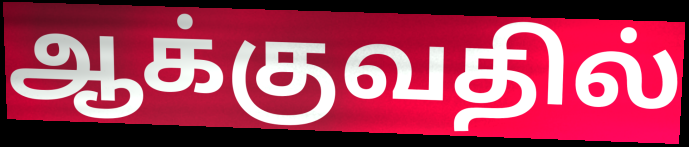
ஆக்குவதில்